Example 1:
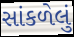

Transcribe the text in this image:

સાંકળેલું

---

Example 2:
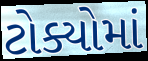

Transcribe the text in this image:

ટોક્યોમાં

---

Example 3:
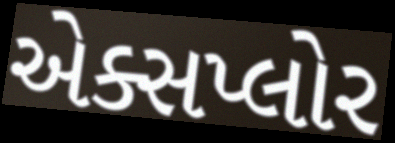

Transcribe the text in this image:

એક્સપ્લોર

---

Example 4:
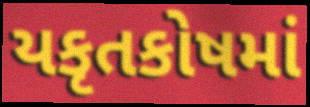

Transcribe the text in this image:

યકૃતકોષમાં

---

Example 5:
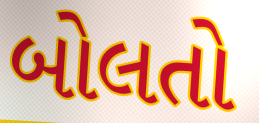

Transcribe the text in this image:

બોલતો